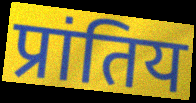
प्रांतिय